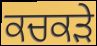
ਕਚਕੜੇ